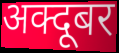
अक्दूबर